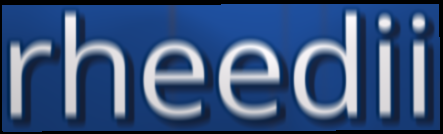
rheedii